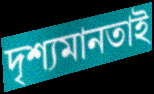
দৃশ্যমানতাই